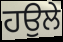
ਹਉਲੇ